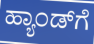
ಹ್ಯಾಂಡ್‌ಗೆ